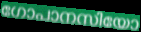
ഗോപാനസിയോ